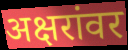
अक्षरांवर